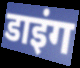
डाइंग